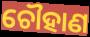
ଚୌହାଣ